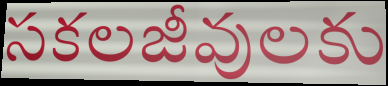
సకలజీవులకు